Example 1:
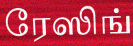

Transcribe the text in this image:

ரேஸிங்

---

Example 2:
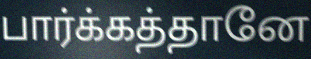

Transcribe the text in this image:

பார்க்கத்தானே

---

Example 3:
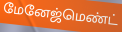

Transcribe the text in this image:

மேனேஜ்மெண்ட்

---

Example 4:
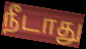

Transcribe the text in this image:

நீடாது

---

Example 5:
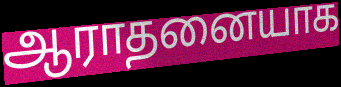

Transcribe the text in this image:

ஆராதனையாக